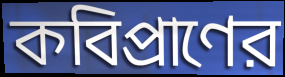
কবিপ্রাণের